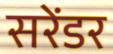
सरेंडर